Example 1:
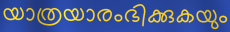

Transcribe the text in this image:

യാത്രയാരംഭിക്കുകയും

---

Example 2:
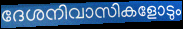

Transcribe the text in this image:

ദേശനിവാസികളോടും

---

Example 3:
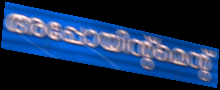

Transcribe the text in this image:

അപ്പോയിന്റ്മെന്റ്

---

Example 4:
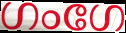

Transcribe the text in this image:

ഗംഗേ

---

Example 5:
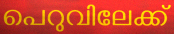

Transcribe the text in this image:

പെറുവിലേക്ക്